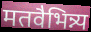
मतवैभिन्न्य